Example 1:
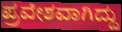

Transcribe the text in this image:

ಪ್ರವೇಶವಾಗಿದ್ದು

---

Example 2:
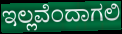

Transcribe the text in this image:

ಇಲ್ಲವೆಂದಾಗಲಿ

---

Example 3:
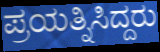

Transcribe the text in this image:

ಪ್ರಯತ್ನಿಸಿದ್ದರು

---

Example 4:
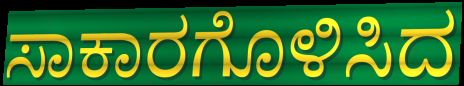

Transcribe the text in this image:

ಸಾಕಾರಗೊಳಿಸಿದ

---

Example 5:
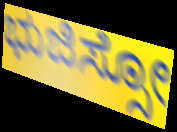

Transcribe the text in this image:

ಭುಜಿಸ್ಸೋ